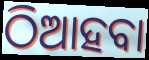
ଠିଆହବା